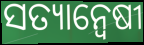
ସତ୍ୟାନ୍ଵେଷୀ